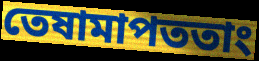
তেষামাপততাং